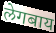
लेगबाय